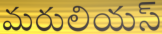
మరులియస్